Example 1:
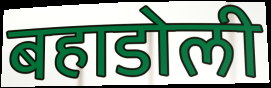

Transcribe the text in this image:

बहाडोली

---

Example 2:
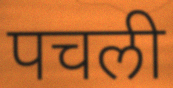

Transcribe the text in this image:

पचली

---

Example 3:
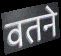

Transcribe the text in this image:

वतने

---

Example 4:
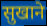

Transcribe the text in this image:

सुखाने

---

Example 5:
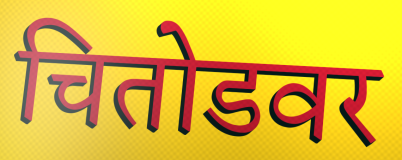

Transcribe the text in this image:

चितोडवर